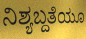
ನಿಶ್ಯಬ್ದತೆಯೂ